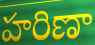
హరిణా